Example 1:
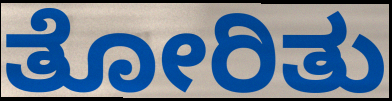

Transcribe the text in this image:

ತೋರಿತು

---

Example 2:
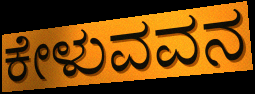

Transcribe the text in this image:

ಕೇಳುವವನ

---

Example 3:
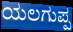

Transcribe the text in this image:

ಯಲಗುಪ್ಪ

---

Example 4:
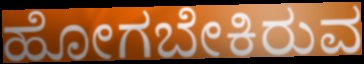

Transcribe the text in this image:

ಹೋಗಬೇಕಿರುವ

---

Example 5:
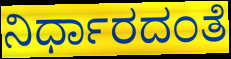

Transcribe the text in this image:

ನಿರ್ಧಾರದಂತೆ